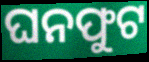
ଘନଫୁଟ